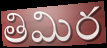
తిమిర